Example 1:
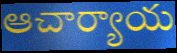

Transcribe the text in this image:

ఆచార్యాయ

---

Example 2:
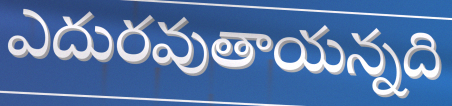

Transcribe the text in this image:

ఎదురవుతాయన్నది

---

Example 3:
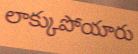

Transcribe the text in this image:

లాక్కుపోయారు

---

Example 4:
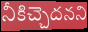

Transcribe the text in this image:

నీకిచ్చెదనని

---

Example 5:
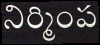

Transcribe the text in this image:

నిర్మింప